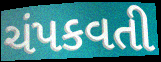
ચંપકવતી